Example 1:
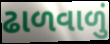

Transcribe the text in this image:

ઢાળવાળું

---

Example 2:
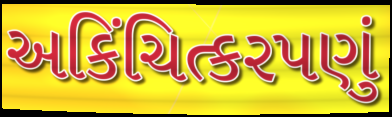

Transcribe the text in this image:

અકિંચિત્કરપણું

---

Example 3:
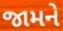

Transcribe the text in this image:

જામને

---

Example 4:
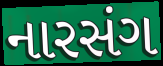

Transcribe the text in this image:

નારસંગ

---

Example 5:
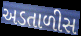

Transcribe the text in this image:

અડતાળીસ